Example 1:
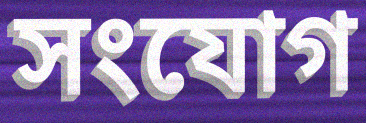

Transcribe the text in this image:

সংযোগ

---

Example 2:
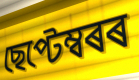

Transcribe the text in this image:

ছেপ্টেম্বৰৰ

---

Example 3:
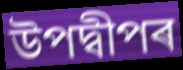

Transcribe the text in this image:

উপদ্বীপৰ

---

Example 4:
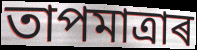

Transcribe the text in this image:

তাপমাত্ৰাৰ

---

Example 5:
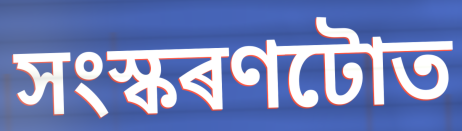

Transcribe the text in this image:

সংস্কৰণটোত